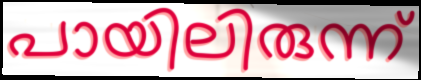
പായിലിരുന്ന്